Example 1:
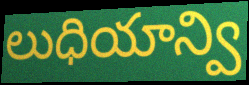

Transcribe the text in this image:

లుధియాన్వి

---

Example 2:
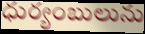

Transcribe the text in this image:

ధుర్యంబులును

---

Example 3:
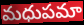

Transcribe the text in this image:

మధుపమా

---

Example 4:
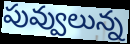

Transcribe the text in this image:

పువ్వులున్న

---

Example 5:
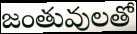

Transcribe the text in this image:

జంతువులతో